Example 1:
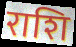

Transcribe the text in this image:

राशि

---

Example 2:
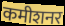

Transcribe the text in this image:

कमीशनर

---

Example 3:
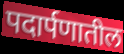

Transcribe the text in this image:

पदार्पणातील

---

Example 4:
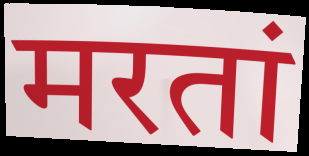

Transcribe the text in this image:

मरतां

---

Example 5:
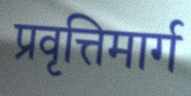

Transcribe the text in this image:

प्रवृत्तिमार्ग